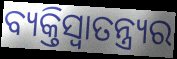
ବ୍ୟକ୍ତିସ୍ୱାତନ୍ତ୍ର୍ୟର